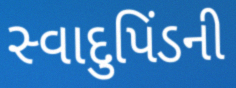
સ્વાદુપિંડની